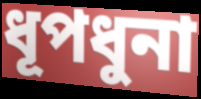
ধূপধুনা